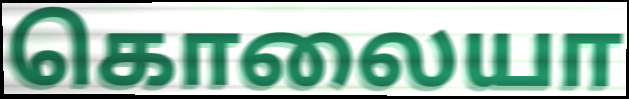
கொலையா